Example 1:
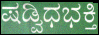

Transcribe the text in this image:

ಷಡ್ವಿಧಭಕ್ತಿ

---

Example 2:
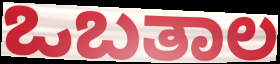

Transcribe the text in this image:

ಒಬತಾಲ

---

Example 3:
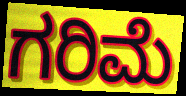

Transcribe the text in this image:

ಗರಿಮೆ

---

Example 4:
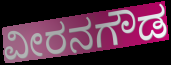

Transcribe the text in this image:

ವೀರನಗೌಡ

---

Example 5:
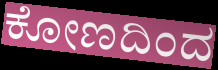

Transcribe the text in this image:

ಕೋಣದಿಂದ